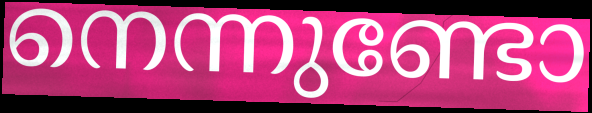
നെന്നുണ്ടോ